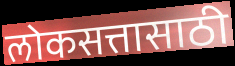
लोकसत्तासाठी